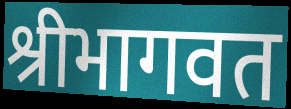
श्रीभागवत